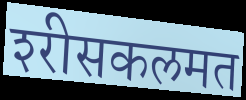
श्रीसकलमत